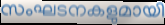
സംഘടനകളുമായി